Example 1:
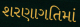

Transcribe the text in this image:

શરણાગતિમાં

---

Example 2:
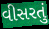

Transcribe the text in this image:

વીસરતું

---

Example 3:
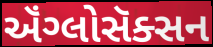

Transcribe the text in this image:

ઍંગ્લોસૅક્સન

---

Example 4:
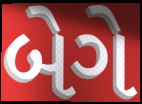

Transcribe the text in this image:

બેગે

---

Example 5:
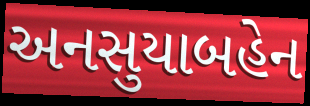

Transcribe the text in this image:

અનસુયાબહેન